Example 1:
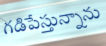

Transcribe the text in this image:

గడిపేస్తున్నాను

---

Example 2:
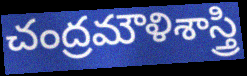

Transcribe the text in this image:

చంద్రమౌళిశాస్త్రి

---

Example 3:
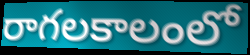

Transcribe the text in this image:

రాగలకాలంలో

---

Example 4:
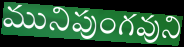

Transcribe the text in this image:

మునిపుంగవుని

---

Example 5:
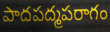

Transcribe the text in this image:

పాదపద్మపరాగం